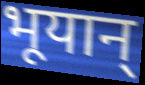
भूयान्